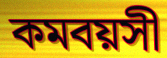
কমবয়সী